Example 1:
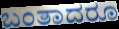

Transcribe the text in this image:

ಬಂತಾದರೂ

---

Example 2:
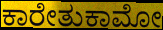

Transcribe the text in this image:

ಕಾರೇತುಕಾಮೋ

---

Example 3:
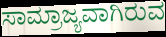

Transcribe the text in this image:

ಸಾಮ್ರಾಜ್ಯವಾಗಿರುವ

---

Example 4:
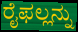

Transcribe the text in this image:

ರೈಫಲ್ಲನ್ನು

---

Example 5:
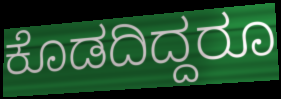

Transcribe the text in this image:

ಕೊಡದಿದ್ದರೂ